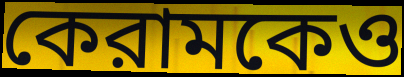
কেরামকেও